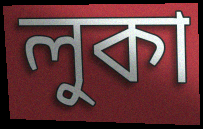
লুকা